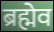
ब्रह्मेव